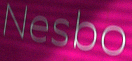
Nesbo